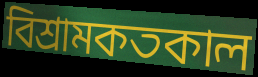
বিশ্রামকতকাল